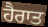
ਹੈਰਾਤ